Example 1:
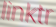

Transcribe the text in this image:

linktr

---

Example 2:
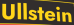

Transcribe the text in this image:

Ullstein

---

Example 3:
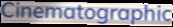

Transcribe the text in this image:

Cinematographic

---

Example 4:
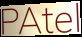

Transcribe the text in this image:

PAtel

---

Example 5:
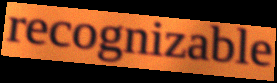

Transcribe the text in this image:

recognizable